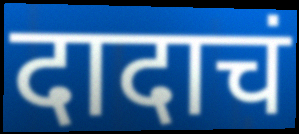
दादाचं